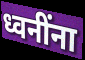
ध्वनींना